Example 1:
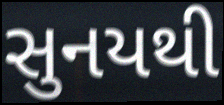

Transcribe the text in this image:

સુનયથી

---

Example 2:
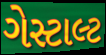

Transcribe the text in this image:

ગેસ્ટાલ્ટ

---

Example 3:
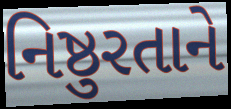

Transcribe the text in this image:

નિષ્ઠુરતાને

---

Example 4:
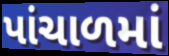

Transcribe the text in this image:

પાંચાળમાં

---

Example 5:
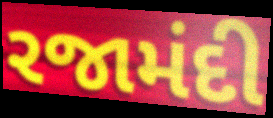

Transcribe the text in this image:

રજામંદી